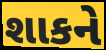
શાકને